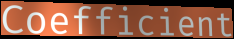
Coefficient